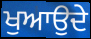
ਖੁਆਉਦੇ